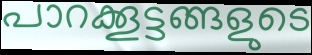
പാറക്കൂട്ടങ്ങളുടെ